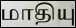
மாதியு